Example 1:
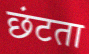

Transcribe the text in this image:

छंटता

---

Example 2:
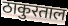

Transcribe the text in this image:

ठाकुरताल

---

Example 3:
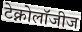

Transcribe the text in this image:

टेक्नोलॉजीज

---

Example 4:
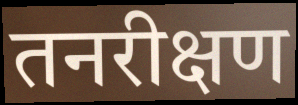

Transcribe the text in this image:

तनरीक्षण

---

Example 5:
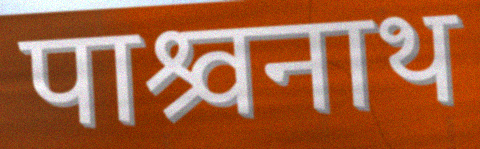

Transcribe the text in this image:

पाश्र्वनाथ